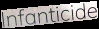
Infanticide